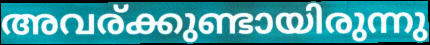
അവര്ക്കുണ്ടായിരുന്നു